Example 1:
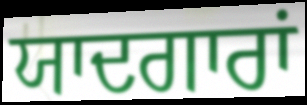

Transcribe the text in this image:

ਯਾਦਗਾਰਾਂ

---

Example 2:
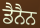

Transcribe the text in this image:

ਡੈਨੈਨ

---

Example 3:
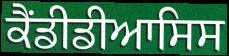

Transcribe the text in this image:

ਕੈਂਡੀਡੀਆਸਿਸ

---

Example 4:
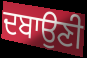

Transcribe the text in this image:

ਦਬਾਉਣੀ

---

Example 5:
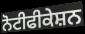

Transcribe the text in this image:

ਨੋਟੀਫੀਕੇਸ਼ਨ